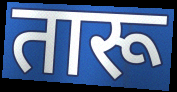
तारू